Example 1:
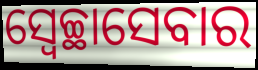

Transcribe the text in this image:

ସ୍ୱେଚ୍ଛାସେବାର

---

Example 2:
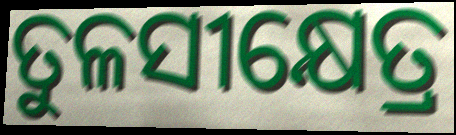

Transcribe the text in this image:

ତୁଳସୀକ୍ଷେତ୍ର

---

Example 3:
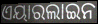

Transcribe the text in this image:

ଏୟାରଲାଇନ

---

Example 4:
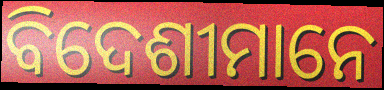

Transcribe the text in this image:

ବିଦେଶୀମାନେ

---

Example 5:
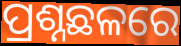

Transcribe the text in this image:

ପ୍ରଶ୍ନଛଳରେ